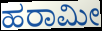
ಹರಾಮೀ